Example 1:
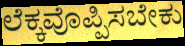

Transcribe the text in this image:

ಲೆಕ್ಕವೊಪ್ಪಿಸಬೇಕು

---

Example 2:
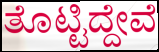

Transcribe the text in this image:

ತೊಟ್ಟಿದ್ದೇವೆ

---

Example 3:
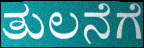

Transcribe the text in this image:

ತುಲನೆಗೆ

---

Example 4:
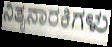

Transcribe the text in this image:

ನಿತ್ಯನಾರಕಿಗಳು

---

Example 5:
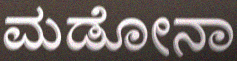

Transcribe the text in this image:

ಮಡೋನಾ